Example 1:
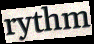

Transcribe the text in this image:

rythm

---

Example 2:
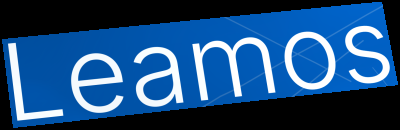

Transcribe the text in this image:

Leamos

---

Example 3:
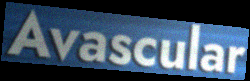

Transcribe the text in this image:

Avascular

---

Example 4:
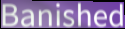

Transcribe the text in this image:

Banished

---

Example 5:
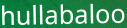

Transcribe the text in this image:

hullabaloo